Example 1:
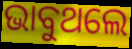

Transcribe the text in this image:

ଭାବୁଥଲେ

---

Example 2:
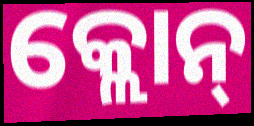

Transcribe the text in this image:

କ୍ଲୋନ୍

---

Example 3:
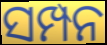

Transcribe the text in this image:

ସମ୍ପନ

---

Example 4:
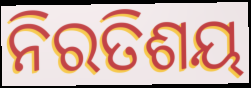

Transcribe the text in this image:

ନିରତିଶୟ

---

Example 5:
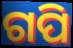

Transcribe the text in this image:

ଗପି